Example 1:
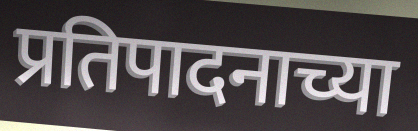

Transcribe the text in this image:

प्रतिपादनाच्या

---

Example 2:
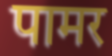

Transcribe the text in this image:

पामर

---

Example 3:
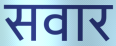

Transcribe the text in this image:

सवार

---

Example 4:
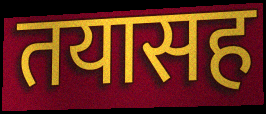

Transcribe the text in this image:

तयासह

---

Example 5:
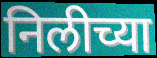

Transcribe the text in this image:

निलीच्या